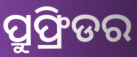
ପ୍ରୁଫ୍ରିଡର